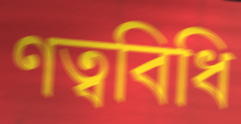
ণত্ববিধি